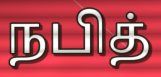
நபித்